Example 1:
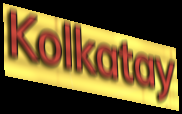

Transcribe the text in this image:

Kolkatay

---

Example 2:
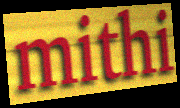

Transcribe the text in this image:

mithi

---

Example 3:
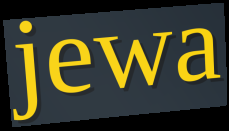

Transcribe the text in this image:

jewa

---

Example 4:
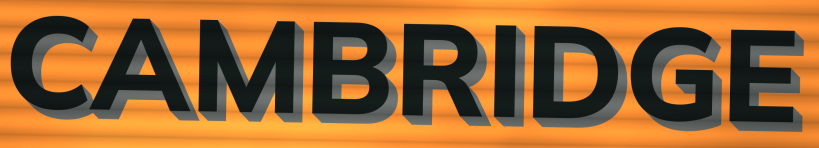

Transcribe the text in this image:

CAMBRIDGE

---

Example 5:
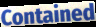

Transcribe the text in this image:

Contained